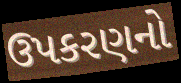
ઉપકરણનો